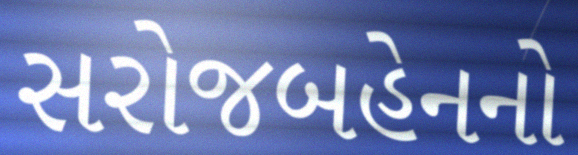
સરોજબહેનનો